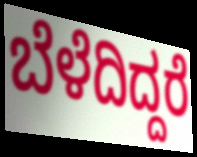
ಬೆಳೆದಿದ್ದರೆ